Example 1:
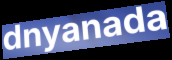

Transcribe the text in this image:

dnyanada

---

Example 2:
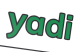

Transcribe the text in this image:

yadi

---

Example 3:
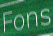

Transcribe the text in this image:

Fons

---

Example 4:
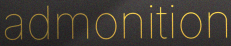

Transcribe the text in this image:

admonition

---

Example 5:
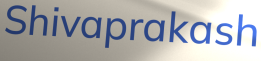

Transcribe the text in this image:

Shivaprakash